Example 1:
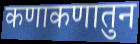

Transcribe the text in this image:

कणाकणातुन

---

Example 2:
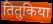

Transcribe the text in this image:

तितुकिया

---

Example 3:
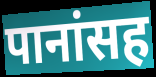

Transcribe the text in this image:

पानांसह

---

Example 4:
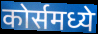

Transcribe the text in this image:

कोर्समध्ये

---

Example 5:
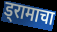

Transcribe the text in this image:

ड्रामाचा